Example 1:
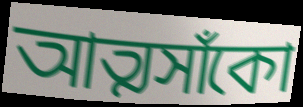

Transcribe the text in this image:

আত্মসাঁকো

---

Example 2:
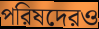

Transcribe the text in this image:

পরিষদেরও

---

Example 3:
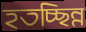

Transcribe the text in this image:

হতচ্ছিন্ন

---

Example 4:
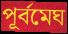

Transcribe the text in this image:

পূর্বমেঘ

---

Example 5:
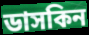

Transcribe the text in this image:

ডাসকিন